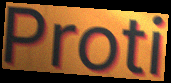
Proti